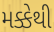
મક્કેથી